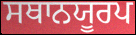
ਸਥਾਨਯੂਰਪ